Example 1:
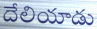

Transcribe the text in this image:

దేలియాడు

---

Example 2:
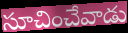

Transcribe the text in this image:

సూచించేవాడు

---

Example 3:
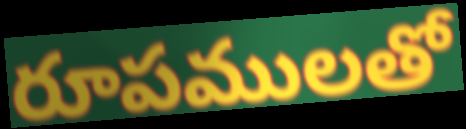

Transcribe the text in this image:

రూపములతో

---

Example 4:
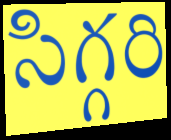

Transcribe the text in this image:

సిగ్గరి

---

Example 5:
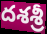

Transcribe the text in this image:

దశశ్రీ